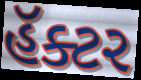
હૅક્ટર